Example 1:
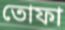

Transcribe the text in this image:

তোফা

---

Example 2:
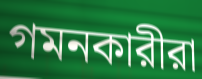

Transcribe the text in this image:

গমনকারীরা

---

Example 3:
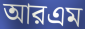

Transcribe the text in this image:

আরএম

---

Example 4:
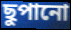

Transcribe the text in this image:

ছুপানো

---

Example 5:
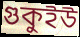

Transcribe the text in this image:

গুকুইউ